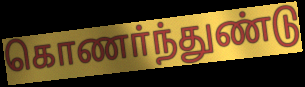
கொணர்ந்துண்டு